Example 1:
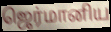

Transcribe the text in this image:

ஜெர்மானிய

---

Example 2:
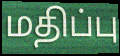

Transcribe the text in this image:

மதிப்பு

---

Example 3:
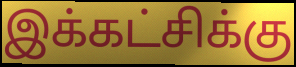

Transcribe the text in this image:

இக்கட்சிக்கு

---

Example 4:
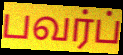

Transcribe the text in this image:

பவர்ப்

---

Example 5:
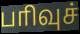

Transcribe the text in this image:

பரிவுச்